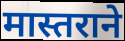
मास्तराने